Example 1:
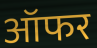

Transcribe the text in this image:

ऑफर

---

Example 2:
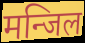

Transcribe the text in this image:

मन्जिल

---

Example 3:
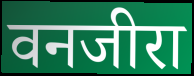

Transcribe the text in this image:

वनजीरा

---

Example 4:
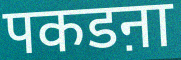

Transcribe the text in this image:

पकडऩा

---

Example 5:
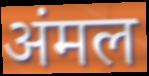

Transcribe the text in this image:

अंमल